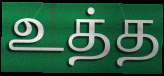
உத்த